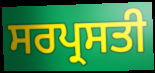
ਸਰਪ੍ਰਸਤੀ